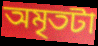
অমৃতটা